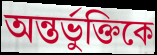
অন্তর্ভুক্তিকে